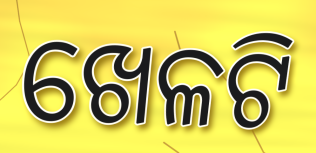
ଖେଳଟି